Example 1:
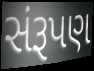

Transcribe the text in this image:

સંરૂપણ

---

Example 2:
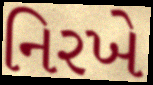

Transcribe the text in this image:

નિરખે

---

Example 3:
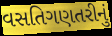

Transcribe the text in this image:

વસતિગણતરીનું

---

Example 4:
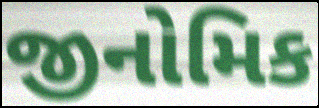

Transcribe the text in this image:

જીનોમિક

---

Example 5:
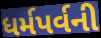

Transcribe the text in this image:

ધર્મપર્વની